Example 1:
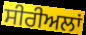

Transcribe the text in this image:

ਸੀਰੀਅਲਾਂ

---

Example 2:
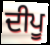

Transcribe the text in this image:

ਦੀਪੂ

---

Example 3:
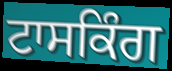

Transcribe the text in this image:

ਟਾਸਕਿੰਗ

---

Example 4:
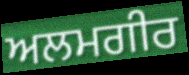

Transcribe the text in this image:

ਅਲਮਗੀਰ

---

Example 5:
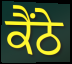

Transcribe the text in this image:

ਕੈਂਠੇ